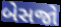
બેસજો